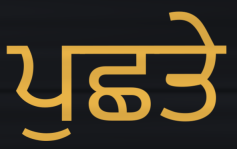
ਪੁਛਤੇ